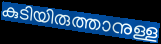
കുടിയിരുത്താനുള്ള